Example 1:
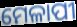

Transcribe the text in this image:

ମେଳାପୀ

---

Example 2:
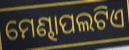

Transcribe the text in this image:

ମେଣ୍ଢାପଲଟିଏ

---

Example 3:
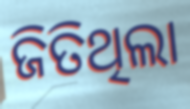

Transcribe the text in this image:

ଜିତିଥିଲା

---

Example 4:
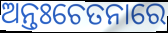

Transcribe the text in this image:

ଅନ୍ତଃଚେତନାରେ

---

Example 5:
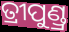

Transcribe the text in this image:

ତ୍ରୀପୁଣ୍ଡ୍ର